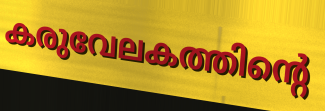
കരുവേലകത്തിന്റെ